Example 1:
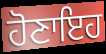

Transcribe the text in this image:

ਹੋਣਾਇਹ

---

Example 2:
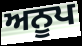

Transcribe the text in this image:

ਅਨੂਪ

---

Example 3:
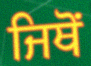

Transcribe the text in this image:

ਜਿਥੋਂ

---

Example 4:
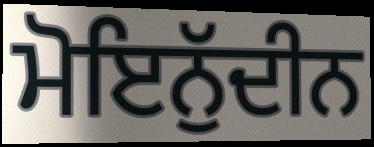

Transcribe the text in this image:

ਮੋਇਨੁੱਦੀਨ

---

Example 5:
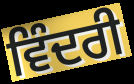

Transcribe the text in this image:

ਵਿੰਦਰੀ